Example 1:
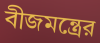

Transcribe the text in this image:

বীজমন্ত্রের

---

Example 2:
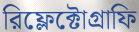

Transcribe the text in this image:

রিফ্লেক্টোগ্রাফি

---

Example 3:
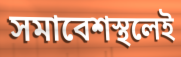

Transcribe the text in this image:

সমাবেশস্থলেই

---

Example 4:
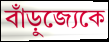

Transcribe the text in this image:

বাঁড়ুজ্যেকে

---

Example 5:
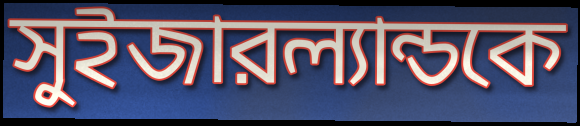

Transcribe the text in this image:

সুইজারল্যান্ডকে